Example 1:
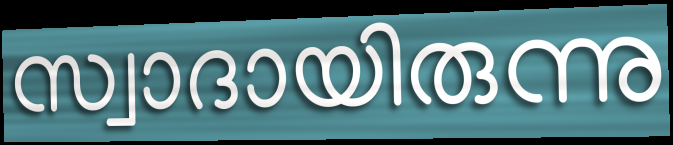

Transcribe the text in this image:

സ്വാദായിരുന്നു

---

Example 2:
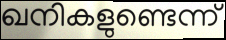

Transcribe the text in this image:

ഖനികളുണ്ടെന്ന്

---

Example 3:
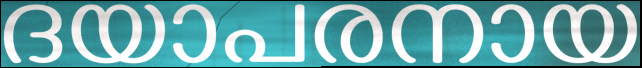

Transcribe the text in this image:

ദയാപരനായ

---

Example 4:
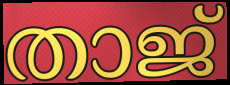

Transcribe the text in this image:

താജ്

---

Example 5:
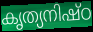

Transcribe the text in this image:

കൃത്യനിഷ്ഠ